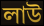
লাউ